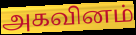
அகவினம்